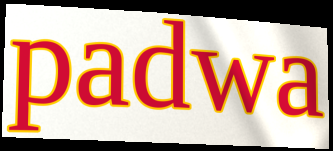
padwa